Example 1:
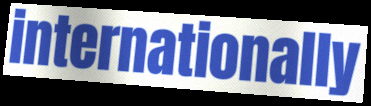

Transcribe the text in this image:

internationally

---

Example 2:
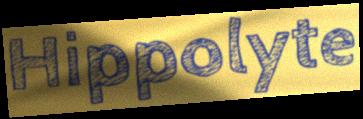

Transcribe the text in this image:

Hippolyte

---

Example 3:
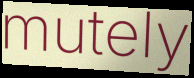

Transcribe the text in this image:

mutely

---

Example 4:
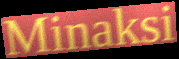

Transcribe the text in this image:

Minaksi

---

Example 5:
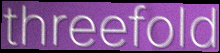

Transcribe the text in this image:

threefold